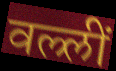
वल्लीं